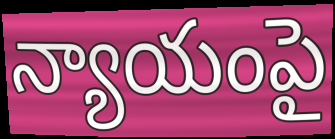
న్యాయంపై